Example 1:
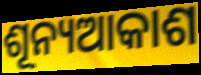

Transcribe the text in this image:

ଶୂନ୍ୟଆକାଶ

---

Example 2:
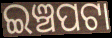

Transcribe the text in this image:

ଇଞ୍ଚପଟା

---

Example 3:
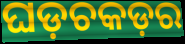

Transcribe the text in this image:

ଘଡ଼ଚକଡ଼ର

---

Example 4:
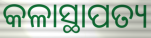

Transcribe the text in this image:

କଳାସ୍ଥାପତ୍ୟ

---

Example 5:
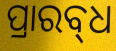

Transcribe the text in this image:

ପ୍ରାରବ୍‍ଧ